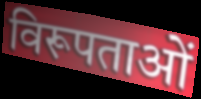
विरूपताओं